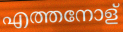
എത്തനോള്